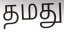
தமது